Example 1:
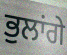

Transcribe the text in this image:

ਭੁਲਾਂਗੇ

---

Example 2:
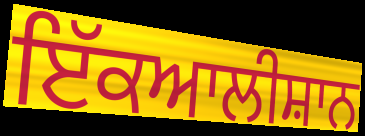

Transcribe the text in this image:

ਇੱਕਆਲੀਸ਼ਾਨ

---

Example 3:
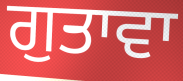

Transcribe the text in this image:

ਗੁਤਾਵਾ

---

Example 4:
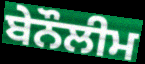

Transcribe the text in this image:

ਬੇਨੌਲੀਮ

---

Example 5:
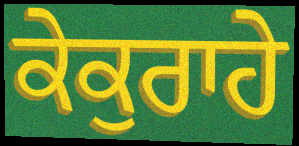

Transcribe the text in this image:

ਕੇਕੁਰਾਹੇ